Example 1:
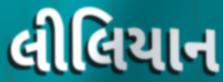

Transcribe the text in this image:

લીલિયાન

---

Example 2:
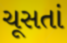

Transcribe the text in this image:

ચૂસતાં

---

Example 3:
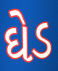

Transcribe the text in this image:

ઘેડ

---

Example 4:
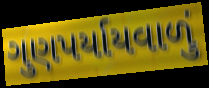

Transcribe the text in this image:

ગુણપર્યાયવાળું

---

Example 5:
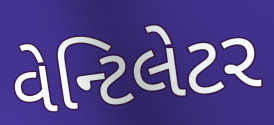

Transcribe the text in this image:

વેન્ટિલેટર